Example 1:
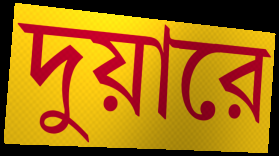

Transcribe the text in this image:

দুয়ারে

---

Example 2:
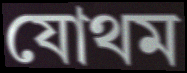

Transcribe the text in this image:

যোথম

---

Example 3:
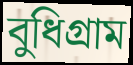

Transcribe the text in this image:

বুধিগ্রাম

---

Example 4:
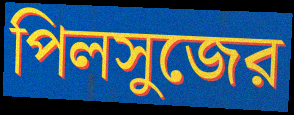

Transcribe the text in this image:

পিলসুজের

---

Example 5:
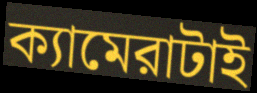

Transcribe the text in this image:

ক্যামেরাটাই